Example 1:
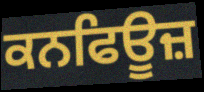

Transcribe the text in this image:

ਕਨਫਿਊਜ਼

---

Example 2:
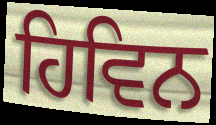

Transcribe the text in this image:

ਹਿਵਿਨ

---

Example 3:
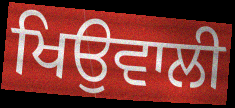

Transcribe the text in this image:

ਖਿਉਵਾਲੀ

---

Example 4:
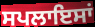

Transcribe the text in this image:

ਸਪਲਾਇਸਾਂ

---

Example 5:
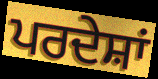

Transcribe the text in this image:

ਪਰਦੇਸ਼ਾਂ